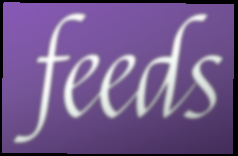
feeds